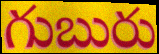
గుబురు